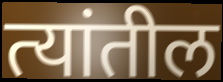
त्‍यांतील